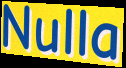
Nulla